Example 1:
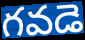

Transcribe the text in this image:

గవడె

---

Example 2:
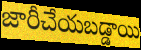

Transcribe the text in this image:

జారీచేయబడ్డాయి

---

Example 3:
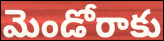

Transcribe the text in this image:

మెండోరాకు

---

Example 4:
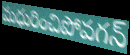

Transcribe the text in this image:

మధురించిపోవగన్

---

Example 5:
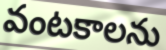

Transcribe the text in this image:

వంటకాలను